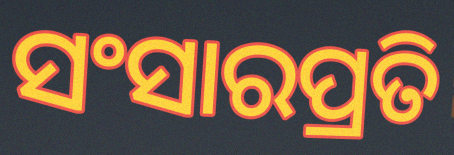
ସଂସାରପ୍ରତି